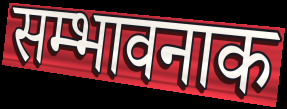
सम्भावनाक